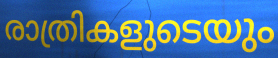
രാത്രികളുടെയും